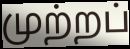
முற்றப்